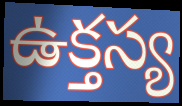
ఉక్తస్య